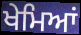
ਖੇਮਿਆਂ